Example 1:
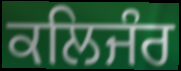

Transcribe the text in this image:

ਕਲਿਜੰਰ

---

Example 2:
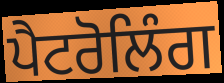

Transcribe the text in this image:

ਪੈਟਰੋਲਿੰਗ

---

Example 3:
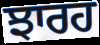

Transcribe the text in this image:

ਝਾਰਹ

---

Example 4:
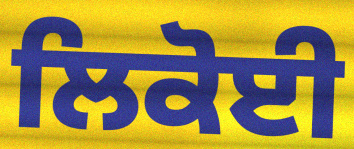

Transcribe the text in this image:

ਲਿਕੋਈ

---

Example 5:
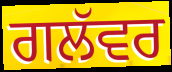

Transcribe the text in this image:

ਗਲੱਵਰ